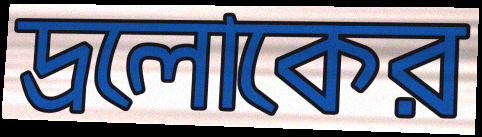
দ্রলোকের